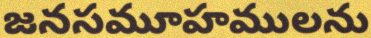
జనసమూహములను